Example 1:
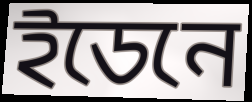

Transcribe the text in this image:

ইডেনে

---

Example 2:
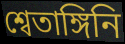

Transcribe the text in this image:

শ্বেতাঙ্গিনি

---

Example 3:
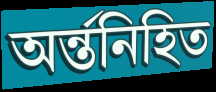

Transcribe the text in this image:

অর্ন্তনিহিত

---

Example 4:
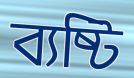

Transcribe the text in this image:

ব্যষ্টি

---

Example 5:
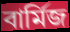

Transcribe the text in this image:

বার্মিজ